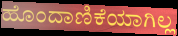
ಹೊಂದಾಣಿಕೆಯಾಗಿಲ್ಲ